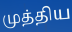
முத்திய